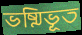
ভষ্মিভূত